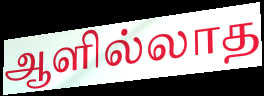
ஆளில்லாத